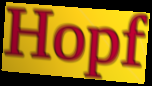
Hopf